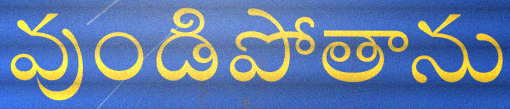
వుండిపోతాను